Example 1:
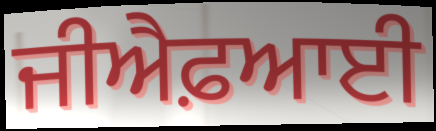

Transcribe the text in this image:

ਜੀਐਫ਼ਆਈ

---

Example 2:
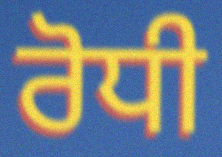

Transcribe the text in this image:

ਰੋਧੀ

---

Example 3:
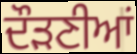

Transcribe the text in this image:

ਦੌੜਣੀਆਂ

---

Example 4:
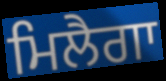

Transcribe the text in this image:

ਮਿਲੈਗਾ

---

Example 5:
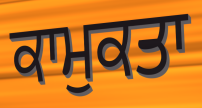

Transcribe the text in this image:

ਕਾਮੁਕਤਾ